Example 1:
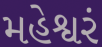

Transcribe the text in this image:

મહેશ્વરં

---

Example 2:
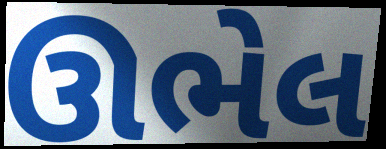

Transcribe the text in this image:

ઊભેલ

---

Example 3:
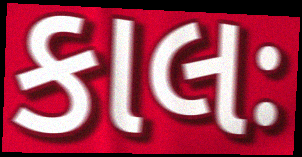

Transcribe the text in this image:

કાલઃ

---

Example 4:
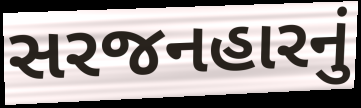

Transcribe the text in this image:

સરજનહારનું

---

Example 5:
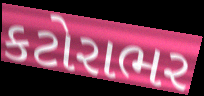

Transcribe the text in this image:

કટોરાભર